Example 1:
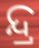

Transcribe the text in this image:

ନ୍ଦ୍ର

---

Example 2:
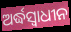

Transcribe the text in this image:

ଅର୍ଦ୍ଧସ୍ୱାଧୀନ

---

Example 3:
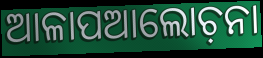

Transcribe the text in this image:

ଆଳାପଆଲୋଚ଼ନା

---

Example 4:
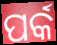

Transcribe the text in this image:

ପର୍କ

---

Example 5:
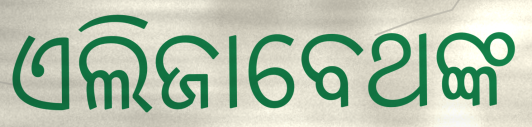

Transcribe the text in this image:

ଏଲିଜାବେଥଙ୍କ